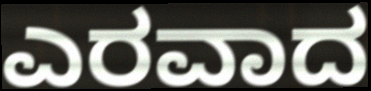
ಎರವಾದ